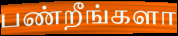
பண்றீங்களா